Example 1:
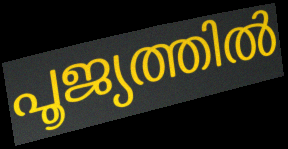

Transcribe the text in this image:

പൂജ്യത്തിൽ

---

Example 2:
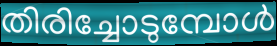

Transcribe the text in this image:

തിരിച്ചോടുമ്പോൾ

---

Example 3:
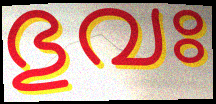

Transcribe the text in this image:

ഭുവഃ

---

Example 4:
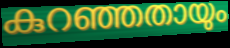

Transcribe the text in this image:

കുറഞ്ഞതായും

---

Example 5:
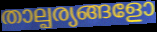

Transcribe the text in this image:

താല്പര്യങ്ങളോ